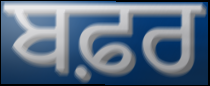
ਬਫ਼ਰ